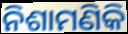
ନିଶାମଣିକି